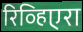
रिव्हिएरा